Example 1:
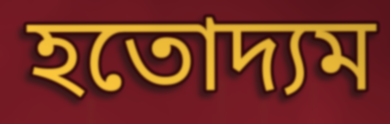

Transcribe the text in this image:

হতোদ্যম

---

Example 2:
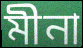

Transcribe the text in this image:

মীনা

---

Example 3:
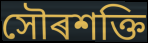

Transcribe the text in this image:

সৌৰশক্তি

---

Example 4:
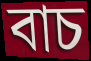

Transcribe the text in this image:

বাচ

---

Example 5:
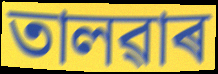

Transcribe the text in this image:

তালৱাৰ